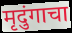
मृदुंगाचा